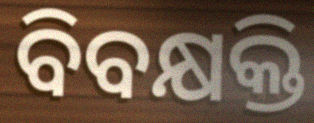
ବିବକ୍ଷକ୍ତି